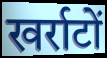
खर्राटों